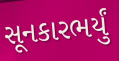
સૂનકારભર્યું